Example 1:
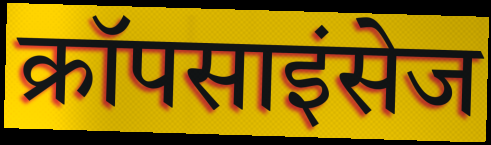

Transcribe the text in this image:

क्रॉपसाइंसेज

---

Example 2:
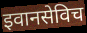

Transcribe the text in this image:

इवानसेविच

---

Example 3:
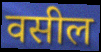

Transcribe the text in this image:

वसील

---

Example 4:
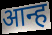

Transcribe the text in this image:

आन्ह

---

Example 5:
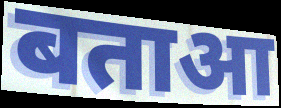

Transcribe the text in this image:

बताआ